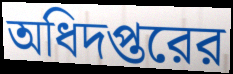
অধিদপ্তরের